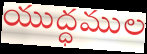
యుద్ధముల